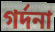
গর্দনা